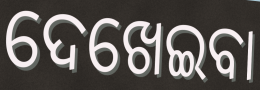
ଦେଖେଇବା